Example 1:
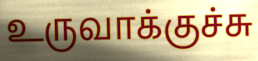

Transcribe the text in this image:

உருவாக்குச்சு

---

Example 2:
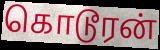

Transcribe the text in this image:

கொடூரன்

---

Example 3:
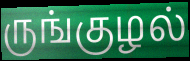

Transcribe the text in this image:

ருங்குழல்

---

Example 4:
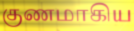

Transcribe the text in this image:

குணமாகிய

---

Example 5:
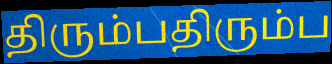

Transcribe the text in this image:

திரும்பதிரும்ப